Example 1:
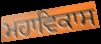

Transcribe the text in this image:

ਮਹਾਵਿਕਾਸ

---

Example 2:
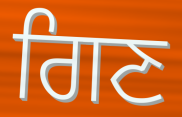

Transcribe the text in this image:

ਗਿਣ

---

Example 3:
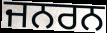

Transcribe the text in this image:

ਜਨਰਨ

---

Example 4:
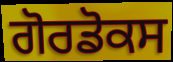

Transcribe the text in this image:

ਗੋਰਡੋਕਸ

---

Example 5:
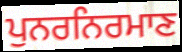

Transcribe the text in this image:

ਪੁਨਰਨਿਰਮਾਣ